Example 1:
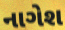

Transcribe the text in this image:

નાગેશ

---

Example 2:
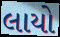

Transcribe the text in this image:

લાયો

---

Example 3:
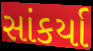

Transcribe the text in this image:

સાંકર્યા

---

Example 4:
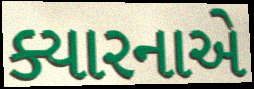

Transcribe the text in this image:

ક્યારનાએ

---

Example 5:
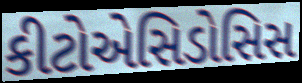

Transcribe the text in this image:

કીટોએસિડોસિસ